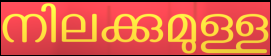
നിലക്കുമുള്ള